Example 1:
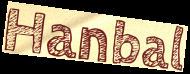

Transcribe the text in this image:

Hanbal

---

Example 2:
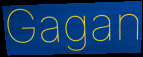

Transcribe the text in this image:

Gagan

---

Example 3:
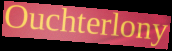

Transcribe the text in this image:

Ouchterlony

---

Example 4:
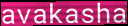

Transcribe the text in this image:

avakasha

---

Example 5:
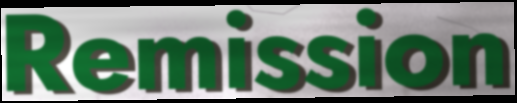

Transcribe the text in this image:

Remission